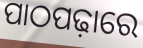
ପାଠପଢ଼ାରେ